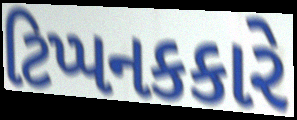
ટિપ્પનકકારે